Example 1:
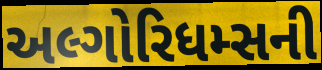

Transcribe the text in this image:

અલ્ગોરિધમ્સની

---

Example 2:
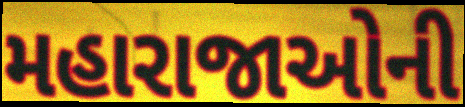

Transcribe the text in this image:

મહારાજાઓની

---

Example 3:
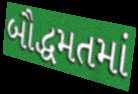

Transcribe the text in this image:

બૌદ્ધમતમાં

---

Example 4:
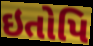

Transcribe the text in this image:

ઇતોપિ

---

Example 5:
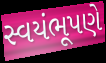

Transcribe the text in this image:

સ્વયંભૂપણે